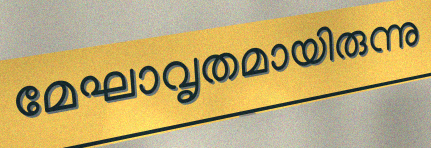
മേഘാവൃതമായിരുന്നു